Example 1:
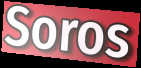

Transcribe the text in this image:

Soros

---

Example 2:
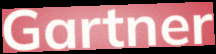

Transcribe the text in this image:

Gartner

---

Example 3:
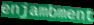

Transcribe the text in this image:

enjambment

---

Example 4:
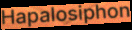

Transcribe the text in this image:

Hapalosiphon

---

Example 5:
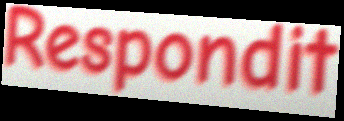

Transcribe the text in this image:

Respondit